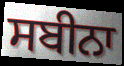
ਸਬੀਨਾ